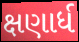
ક્ષણાર્ધ